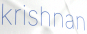
krishnan